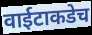
वाईटाकडेच